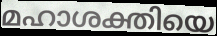
മഹാശക്തിയെ